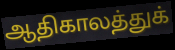
ஆதிகாலத்துக்